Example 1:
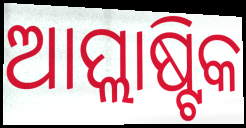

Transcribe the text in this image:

ଆପ୍ଲାଷ୍ଟିକ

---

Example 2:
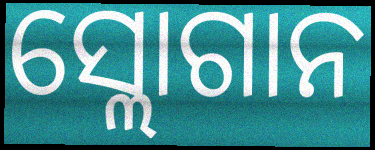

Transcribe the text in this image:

ସ୍ଲୋଗାନ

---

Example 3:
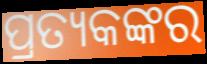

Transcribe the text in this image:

ପ୍ରତ୍ୟକଙ୍କର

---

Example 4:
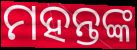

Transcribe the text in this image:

ମହନ୍ତଙ୍କ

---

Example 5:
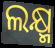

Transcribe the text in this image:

ଲକ୍ଷ୍ମ